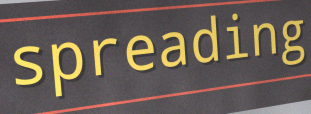
spreading